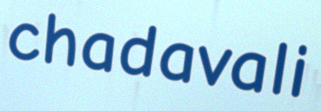
chadavali